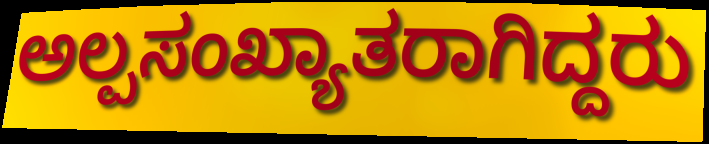
ಅಲ್ಪಸಂಖ್ಯಾತರಾಗಿದ್ದರು